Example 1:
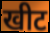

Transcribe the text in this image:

खीट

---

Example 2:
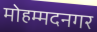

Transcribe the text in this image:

मोहम्मदनगर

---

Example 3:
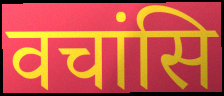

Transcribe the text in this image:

वचांसि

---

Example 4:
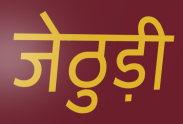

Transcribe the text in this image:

जेठुड़ी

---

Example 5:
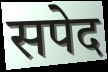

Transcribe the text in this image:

सपेद